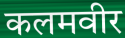
कलमवीर